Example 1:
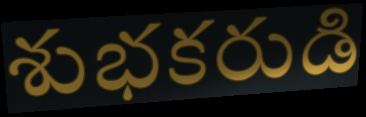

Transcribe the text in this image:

శుభకరుడి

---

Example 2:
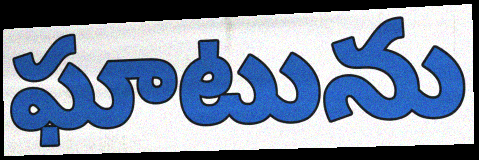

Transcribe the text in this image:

ఘాటును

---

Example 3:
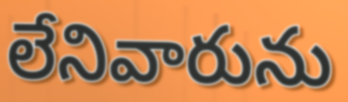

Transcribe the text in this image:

లేనివారును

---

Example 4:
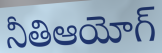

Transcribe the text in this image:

నీతిఆయోగ్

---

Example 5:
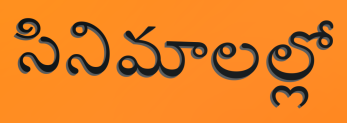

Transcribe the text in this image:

సినిమాలల్లో